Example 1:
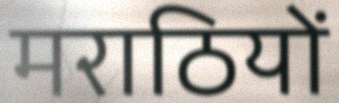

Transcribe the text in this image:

मराठियों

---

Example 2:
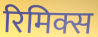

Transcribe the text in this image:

रिमिक्स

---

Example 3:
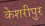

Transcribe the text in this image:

केशरीपुर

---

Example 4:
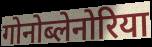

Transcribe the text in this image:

गोनोब्लेनोरिया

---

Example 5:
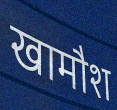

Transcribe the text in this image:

खामौश